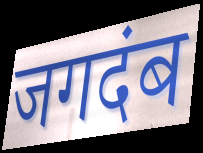
जगदंब